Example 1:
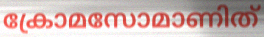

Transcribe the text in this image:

ക്രോമസോമാണിത്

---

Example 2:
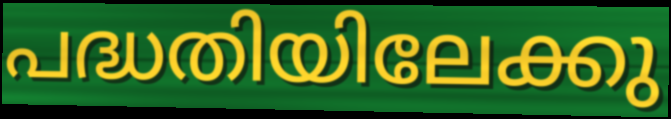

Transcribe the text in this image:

പദ്ധതിയിലേക്കു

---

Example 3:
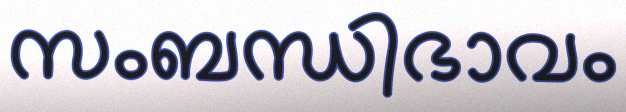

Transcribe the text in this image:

സംബന്ധിഭാവം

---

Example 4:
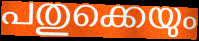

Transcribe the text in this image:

പതുക്കെയും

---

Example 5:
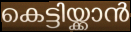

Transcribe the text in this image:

കെട്ടിയ്ക്കാൻ